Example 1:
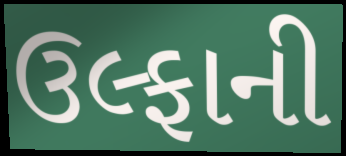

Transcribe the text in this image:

ઉલ્ફાની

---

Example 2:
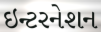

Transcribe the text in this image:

ઇન્ટરનેશન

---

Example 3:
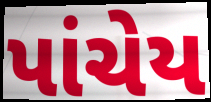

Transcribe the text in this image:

પાંચેય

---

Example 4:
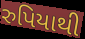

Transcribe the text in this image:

રુપિયાથી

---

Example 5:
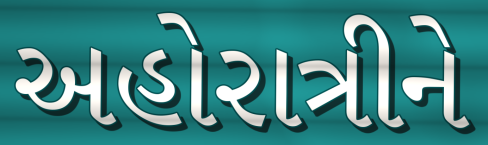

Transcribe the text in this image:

અહોરાત્રીને